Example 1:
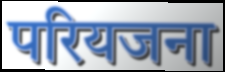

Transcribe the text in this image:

परियजना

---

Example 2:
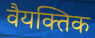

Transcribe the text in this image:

वैयक्तिक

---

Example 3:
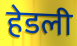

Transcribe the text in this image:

हेडली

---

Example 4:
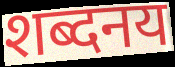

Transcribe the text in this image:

शब्दनय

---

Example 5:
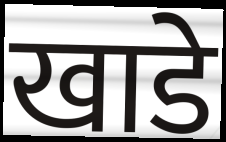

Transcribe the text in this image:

खाडे